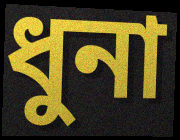
ধুনা